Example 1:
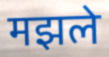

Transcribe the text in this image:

मझले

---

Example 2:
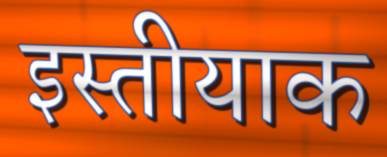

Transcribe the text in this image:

इस्तीयाक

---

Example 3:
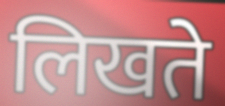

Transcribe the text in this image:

लिखते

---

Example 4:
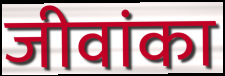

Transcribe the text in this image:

जीवांका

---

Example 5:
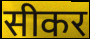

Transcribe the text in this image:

सीकर